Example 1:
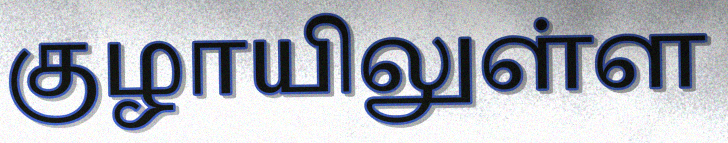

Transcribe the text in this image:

குழாயிலுள்ள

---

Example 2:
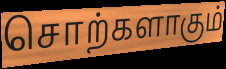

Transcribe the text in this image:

சொற்களாகும்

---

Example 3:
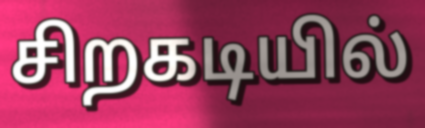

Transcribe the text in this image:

சிறகடியில்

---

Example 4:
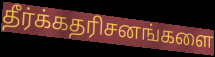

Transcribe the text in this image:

தீர்க்கதரிசனங்களை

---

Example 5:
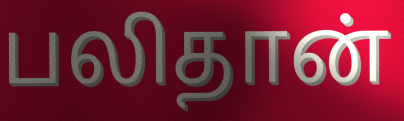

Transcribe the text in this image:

பலிதான்